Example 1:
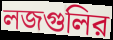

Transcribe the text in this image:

লজগুলির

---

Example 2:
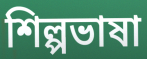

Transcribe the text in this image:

শিল্পভাষা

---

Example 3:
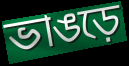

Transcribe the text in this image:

ভাঙড়ে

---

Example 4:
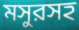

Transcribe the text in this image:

মসুরসহ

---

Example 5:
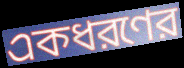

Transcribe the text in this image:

একধরণের